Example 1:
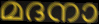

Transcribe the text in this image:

മദനാ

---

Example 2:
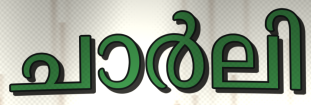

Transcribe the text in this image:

ചാർലി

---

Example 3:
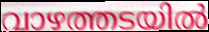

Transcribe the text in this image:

വാഴത്തടയിൽ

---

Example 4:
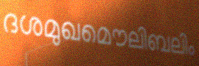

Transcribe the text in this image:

ദശമുഖമൌലിബലിം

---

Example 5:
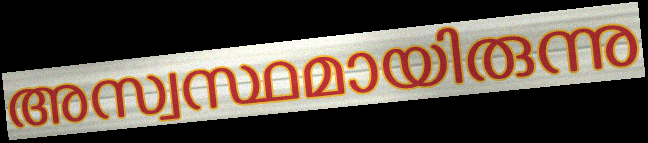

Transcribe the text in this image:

അസ്വസ്ഥമായിരുന്നു